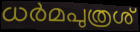
ധർമപുത്രശ്